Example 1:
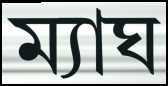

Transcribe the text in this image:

ম্যাঘ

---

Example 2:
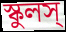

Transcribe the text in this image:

স্কুলস্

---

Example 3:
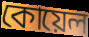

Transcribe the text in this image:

কোয়েল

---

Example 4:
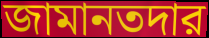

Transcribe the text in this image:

জামানতদার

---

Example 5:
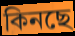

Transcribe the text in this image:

কিনছে